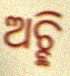
ଅଚ୍ଛି